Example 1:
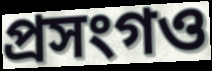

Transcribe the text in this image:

প্ৰসংগও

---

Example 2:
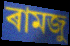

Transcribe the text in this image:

ৰামজু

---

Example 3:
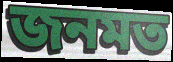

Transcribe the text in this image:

জনমত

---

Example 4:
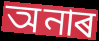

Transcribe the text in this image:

অনাৰ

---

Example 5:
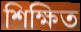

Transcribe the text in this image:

শিক্ষিত